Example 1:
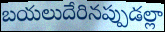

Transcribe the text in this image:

బయలుదేరినప్పుడల్లా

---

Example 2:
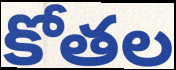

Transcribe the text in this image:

కోతల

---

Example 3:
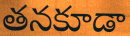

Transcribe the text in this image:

తనకూడా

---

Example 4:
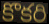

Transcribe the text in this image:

కొకరి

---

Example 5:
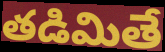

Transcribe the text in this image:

తడిమితే